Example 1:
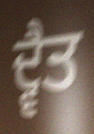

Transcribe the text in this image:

ਦ੍ਵੈਤ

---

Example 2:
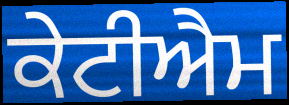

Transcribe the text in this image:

ਕੇਟੀਐਮ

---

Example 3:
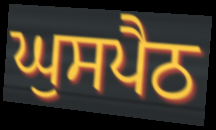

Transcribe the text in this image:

ਘੁਸਪੈਠ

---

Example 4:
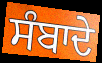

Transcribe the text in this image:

ਸੰਬਾਦੇ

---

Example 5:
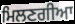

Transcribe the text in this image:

ਮਿਲਣਗੀਆ